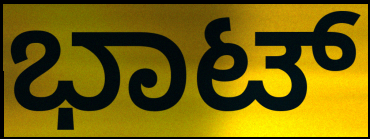
ಭಾಟ್